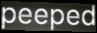
peeped